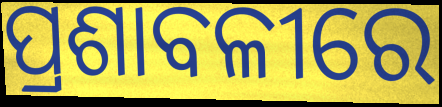
ପ୍ରଶାବଳୀରେ